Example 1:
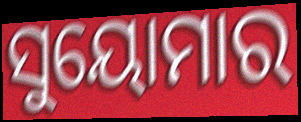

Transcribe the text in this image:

ସୁୟୋମାର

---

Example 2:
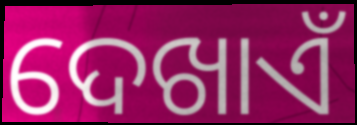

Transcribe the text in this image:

ଦେଖାଏଁ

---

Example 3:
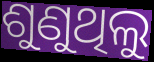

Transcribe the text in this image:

ଶୁଣୁଥିଲୁ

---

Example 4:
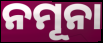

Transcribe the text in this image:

ନମୂନା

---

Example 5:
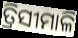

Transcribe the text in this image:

ତ୍ରିସୀମାଳି